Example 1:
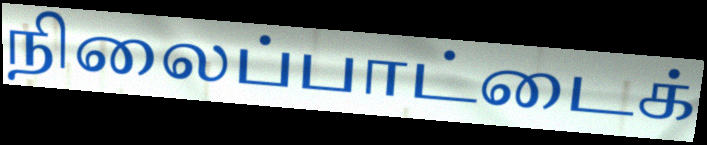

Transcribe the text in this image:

நிலைப்பாட்டைக்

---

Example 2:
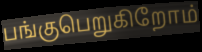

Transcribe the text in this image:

பங்குபெறுகிறோம்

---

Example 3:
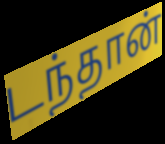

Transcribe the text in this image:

டந்தான்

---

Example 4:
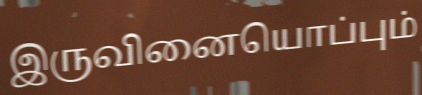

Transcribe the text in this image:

இருவினையொப்பும்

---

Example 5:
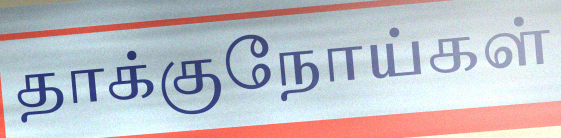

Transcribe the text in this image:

தாக்குநோய்கள்